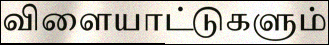
விளையாட்டுகளும்